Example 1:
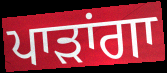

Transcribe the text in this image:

ਪਾੜਾਂਗਾ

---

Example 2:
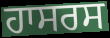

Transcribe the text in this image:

ਹਾਸਰਸ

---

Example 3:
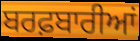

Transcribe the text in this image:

ਬਰਫ਼ਬਾਰੀਆਂ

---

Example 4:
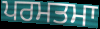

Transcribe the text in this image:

ਪਰਮਤਮਾ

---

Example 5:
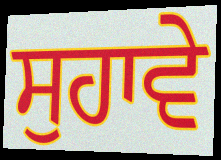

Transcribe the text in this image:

ਸੁਹਾਵੇ